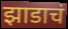
झाडाचं